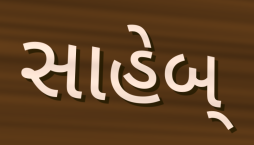
સાહેબ્